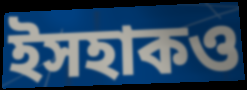
ইসহাকও